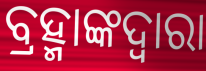
ବ୍ରହ୍ମାଙ୍କଦ୍ୱାରା